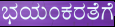
ಭಯಂಕರತೆಗೆ